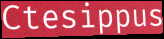
Ctesippus